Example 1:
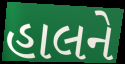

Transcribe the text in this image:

હાલને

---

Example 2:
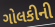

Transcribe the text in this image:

ગોલકીની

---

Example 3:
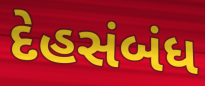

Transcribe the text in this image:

દેહસંબંધ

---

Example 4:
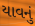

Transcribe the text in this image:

યાવનું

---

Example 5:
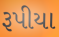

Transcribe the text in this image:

રૂપીયા